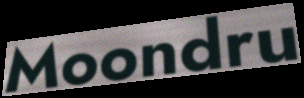
Moondru